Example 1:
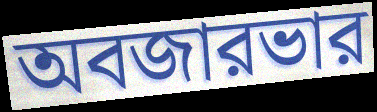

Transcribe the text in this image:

অবজারভার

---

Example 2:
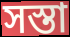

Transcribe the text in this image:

সস্তা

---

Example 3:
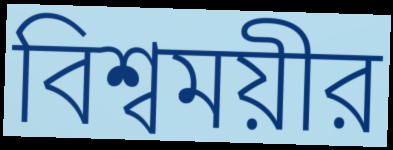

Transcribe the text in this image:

বিশ্বময়ীর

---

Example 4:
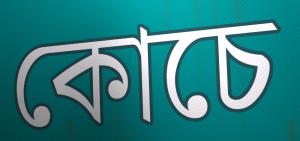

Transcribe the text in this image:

কোচে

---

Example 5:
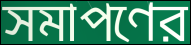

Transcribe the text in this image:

সমাপণের